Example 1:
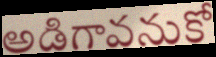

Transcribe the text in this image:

అడిగావనుకో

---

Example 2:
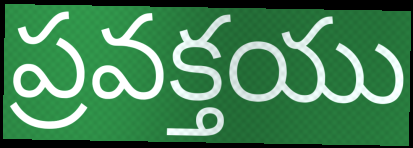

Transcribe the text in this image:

ప్రవక్తయు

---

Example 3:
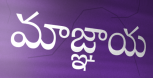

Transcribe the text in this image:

మాజ్ఞాయ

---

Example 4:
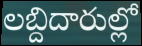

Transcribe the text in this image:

లబ్దిదారుల్లో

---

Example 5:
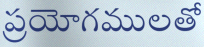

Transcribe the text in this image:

ప్రయోగములతో